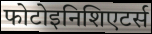
फोटोइनिशिएटर्स